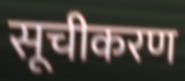
सूचीकरण